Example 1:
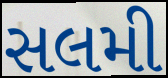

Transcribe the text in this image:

સલમી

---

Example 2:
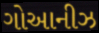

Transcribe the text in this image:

ગોઆનીઝ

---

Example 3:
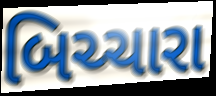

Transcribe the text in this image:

બિચ્ચારા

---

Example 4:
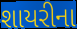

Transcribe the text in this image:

શાયરીના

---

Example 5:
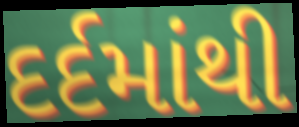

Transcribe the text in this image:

દર્દમાંથી